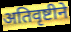
अतिवृष्टीने